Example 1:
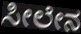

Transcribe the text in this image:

ಸೀಲೇನ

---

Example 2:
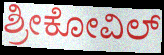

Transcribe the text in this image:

ಶ್ರೀಕೋವಿಲ್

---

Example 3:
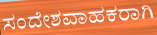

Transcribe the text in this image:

ಸಂದೇಶವಾಹಕರಾಗಿ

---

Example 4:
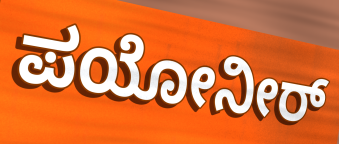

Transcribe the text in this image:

ಪಯೋನೀರ್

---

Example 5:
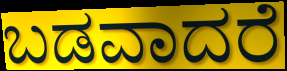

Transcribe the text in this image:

ಬಡವಾದರೆ